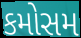
કમોસમ